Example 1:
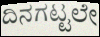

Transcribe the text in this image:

ದಿನಗಟ್ಟಲೇ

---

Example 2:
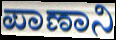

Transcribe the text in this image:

ಪಾಣಾನಿ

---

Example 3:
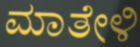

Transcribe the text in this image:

ಮಾತೇಳಿ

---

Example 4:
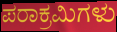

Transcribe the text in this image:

ಪರಾಕ್ರಮಿಗಳು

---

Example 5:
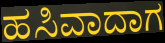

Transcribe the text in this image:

ಹಸಿವಾದಾಗ